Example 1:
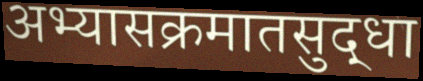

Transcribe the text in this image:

अभ्यासक्रमातसुद्धा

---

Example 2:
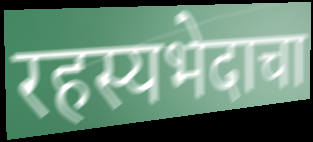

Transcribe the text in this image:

रहस्यभेदाचा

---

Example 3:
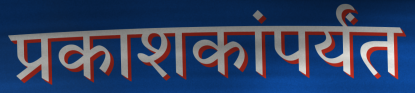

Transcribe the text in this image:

प्रकाशकांपर्यंत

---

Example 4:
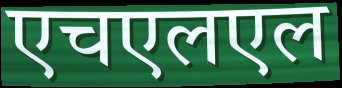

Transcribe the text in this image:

एचएलएल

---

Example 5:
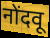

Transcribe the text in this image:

नोंदवू